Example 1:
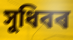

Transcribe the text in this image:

সুধিবৰ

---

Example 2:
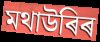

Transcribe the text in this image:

মথাউৰিৰ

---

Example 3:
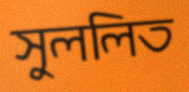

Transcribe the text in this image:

সুললিত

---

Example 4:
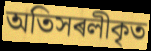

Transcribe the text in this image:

অতিসৰলীকৃত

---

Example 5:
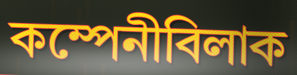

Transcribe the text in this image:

কম্পেনীবিলাক